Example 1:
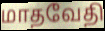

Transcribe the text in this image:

மாதவேதி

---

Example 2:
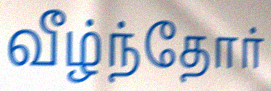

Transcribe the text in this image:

வீழ்ந்தோர்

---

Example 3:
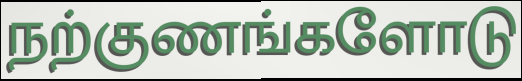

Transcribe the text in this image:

நற்குணங்களோடு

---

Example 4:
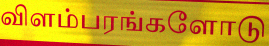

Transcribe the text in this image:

விளம்பரங்களோடு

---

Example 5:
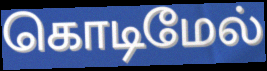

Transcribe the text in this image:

கொடிமேல்